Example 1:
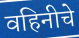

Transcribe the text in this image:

वहिनीचे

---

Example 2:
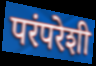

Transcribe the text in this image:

परंपरेशी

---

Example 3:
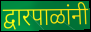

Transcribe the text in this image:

द्वारपाळांनी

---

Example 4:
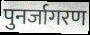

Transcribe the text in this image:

पुनर्जागरण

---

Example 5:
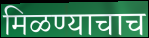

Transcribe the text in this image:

मिळण्याचाच